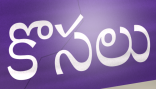
కొసలు